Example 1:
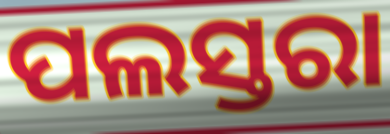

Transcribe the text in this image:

ପଲସ୍ତରା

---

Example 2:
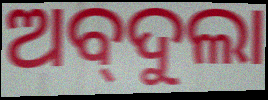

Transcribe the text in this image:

ଅବ୍‌ଦୁଲା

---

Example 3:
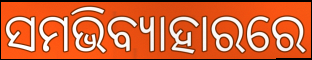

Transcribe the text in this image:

ସମଭିବ୍ୟାହାରରେ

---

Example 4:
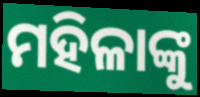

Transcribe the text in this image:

ମହିଳାଙ୍କୁ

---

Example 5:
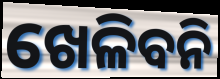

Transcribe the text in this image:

ଖେଳିବନି